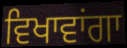
ਵਿਖਾਵਾਂਗਾ